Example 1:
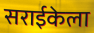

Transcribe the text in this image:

सराईकेला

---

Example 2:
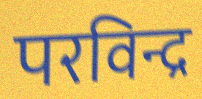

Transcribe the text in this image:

परविन्द्र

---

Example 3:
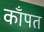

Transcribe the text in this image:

काँपत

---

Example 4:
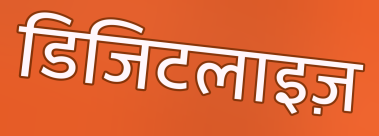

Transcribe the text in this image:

डिजिटलाइज़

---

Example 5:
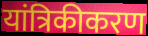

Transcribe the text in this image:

यांत्रिकीकरण